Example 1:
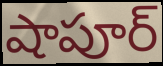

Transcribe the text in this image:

షాపూర్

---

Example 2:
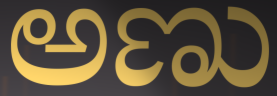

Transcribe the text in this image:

అణు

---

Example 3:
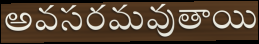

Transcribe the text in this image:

అవసరమవుతాయి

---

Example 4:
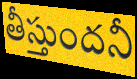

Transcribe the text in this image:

తీస్తుందనీ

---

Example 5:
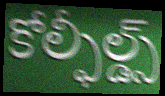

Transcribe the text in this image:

కోల్ఫీల్డ్స్